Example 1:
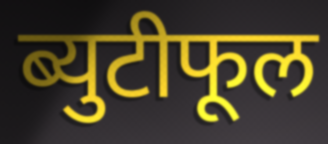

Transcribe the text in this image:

ब्युटीफूल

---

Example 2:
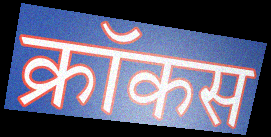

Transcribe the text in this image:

क्रॉकस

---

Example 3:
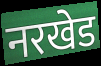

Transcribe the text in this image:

नरखेड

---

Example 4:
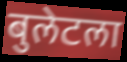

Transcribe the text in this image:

बुलेटला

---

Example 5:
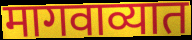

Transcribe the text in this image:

मागवाव्यात